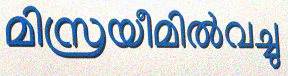
മിസ്രയീമിൽവച്ചു